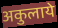
अकुलाये